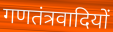
गणतंत्रवादियों